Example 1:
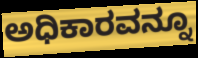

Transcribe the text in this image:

ಅಧಿಕಾರವನ್ನೂ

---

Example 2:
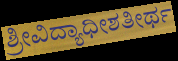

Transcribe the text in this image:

ಶ್ರೀವಿದ್ಯಾಧೀಶತೀರ್ಥ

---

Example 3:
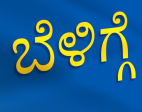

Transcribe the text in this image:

ಬೆಳಿಗ್ಗೆ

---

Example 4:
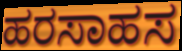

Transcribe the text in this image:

ಹರಸಾಹಸ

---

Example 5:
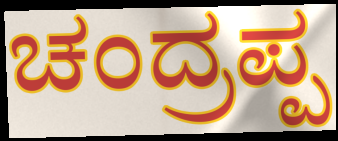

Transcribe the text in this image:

ಚಂದ್ರಪ್ಪ